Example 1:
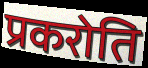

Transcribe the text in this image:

प्रकरोति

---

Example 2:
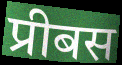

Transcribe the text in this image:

प्रीबस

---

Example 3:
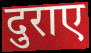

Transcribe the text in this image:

दुराए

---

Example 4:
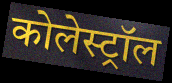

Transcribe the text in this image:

कोलेस्‍ट्रॉल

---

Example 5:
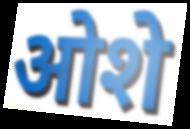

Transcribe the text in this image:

ओशे